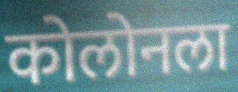
कोलोनला